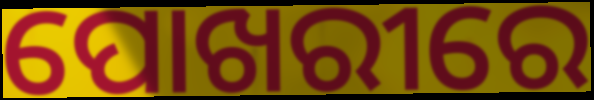
ପୋଖରୀରେ